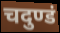
चदुण्डं